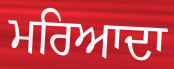
ਮਰਿਆਦਾ